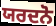
ਯਰਦਨੋ